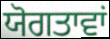
ਯੋਗਤਾਵਾਂ